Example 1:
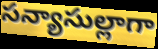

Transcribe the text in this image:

సన్యాసుల్లాగా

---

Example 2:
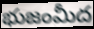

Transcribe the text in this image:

భుజంమీద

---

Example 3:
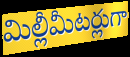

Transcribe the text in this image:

మిల్లీమీటర్లుగా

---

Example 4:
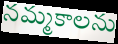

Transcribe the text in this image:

నమ్మకాలను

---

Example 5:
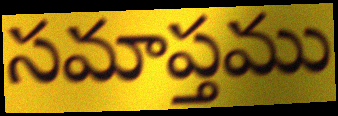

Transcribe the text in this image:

సమాప్తము